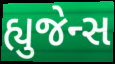
હ્યુજેન્સ